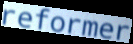
reformer